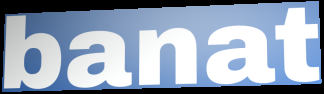
banat